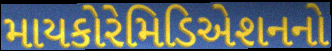
માયકોરેમિડિએશનનો